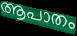
ആപാതം